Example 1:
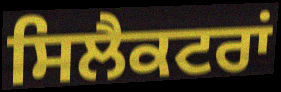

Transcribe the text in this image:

ਸਿਲੈਕਟਰਾਂ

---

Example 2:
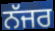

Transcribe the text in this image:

ਨੱਜਰ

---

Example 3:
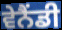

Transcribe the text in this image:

ਵੇਨੈਂਡੀ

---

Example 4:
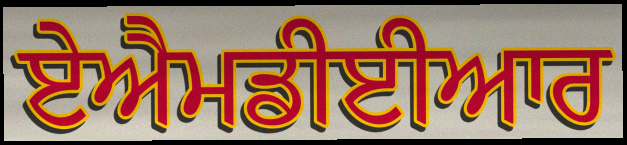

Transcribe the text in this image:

ਏਐਮਡੀਈਆਰ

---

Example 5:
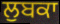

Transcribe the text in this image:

ਲੁਬਕਾ